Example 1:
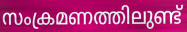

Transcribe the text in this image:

സംക്രമണത്തിലുണ്ട്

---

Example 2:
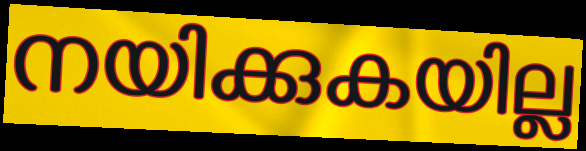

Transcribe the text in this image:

നയിക്കുകയില്ല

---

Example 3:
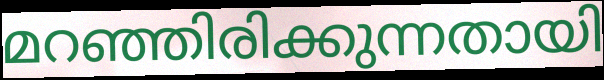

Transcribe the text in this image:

മറഞ്ഞിരിക്കുന്നതായി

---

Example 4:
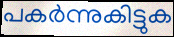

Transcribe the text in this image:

പകർന്നുകിട്ടുക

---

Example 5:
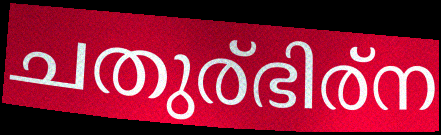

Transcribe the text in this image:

ചതുര്ഭിര്ന